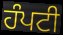
ਹੰਪਟੀ